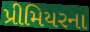
પ્રીમિયરના